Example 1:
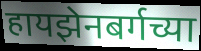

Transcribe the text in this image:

हायझेनबर्गच्या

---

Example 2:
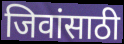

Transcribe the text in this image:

जिवांसाठी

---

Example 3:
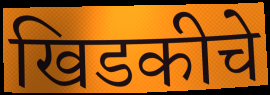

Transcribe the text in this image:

खिडकीचे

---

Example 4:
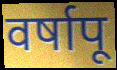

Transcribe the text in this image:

वर्षापू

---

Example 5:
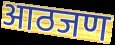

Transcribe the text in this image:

आठजण